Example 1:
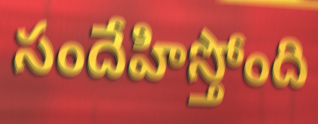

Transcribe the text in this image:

సందేహిస్తోంది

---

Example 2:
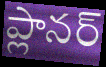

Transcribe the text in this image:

ప్లానర్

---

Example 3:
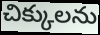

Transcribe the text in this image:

చిక్కులను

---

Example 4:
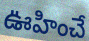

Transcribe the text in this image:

ఊహించే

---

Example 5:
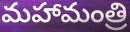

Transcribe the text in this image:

మహామంత్రి